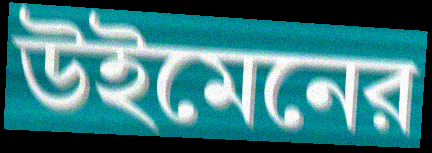
উইমেনের